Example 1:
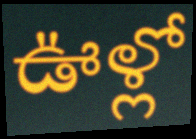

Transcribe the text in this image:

ఊళ్లో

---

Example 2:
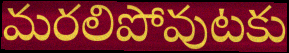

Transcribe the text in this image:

మరలిపోవుటకు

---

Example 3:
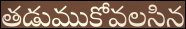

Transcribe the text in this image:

తడుముకోవలసిన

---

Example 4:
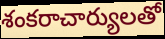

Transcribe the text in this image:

శంకరాచార్యులతో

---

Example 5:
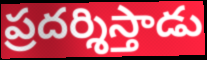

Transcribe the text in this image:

ప్రదర్శిస్తాడు